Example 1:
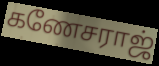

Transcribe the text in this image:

கணேசராஜ்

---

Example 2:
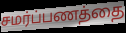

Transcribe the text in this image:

சமர்ப்பணத்தை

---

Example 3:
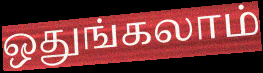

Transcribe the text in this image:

ஒதுங்கலாம்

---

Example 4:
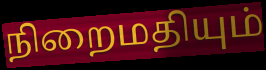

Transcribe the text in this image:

நிறைமதியும்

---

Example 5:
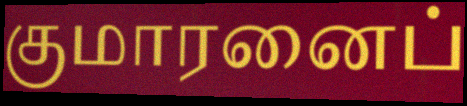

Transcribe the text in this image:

குமாரனைப்